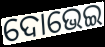
ଦୋଭେଇ